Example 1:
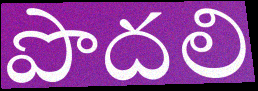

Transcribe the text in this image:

పొదలి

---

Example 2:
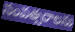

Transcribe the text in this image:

సంవత్సరాలను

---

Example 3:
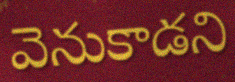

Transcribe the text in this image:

వెనుకాడని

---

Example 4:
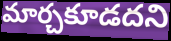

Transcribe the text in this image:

మార్చకూడదని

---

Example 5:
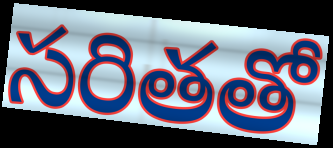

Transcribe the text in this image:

సరితతో